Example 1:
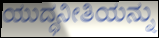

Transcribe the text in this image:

ಯುದ್ಧನೀತಿಯನ್ನು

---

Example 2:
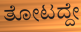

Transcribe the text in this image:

ತೋಟದ್ದೇ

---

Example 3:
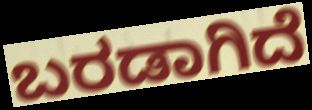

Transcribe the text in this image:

ಬರಡಾಗಿದೆ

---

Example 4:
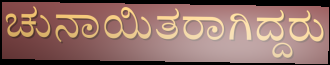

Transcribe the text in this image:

ಚುನಾಯಿತರಾಗಿದ್ದರು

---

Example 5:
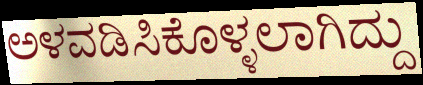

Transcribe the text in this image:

ಅಳವಡಿಸಿಕೊಳ್ಳಲಾಗಿದ್ದು